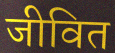
जीवित